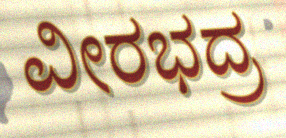
ವೀರಭದ್ರ